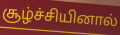
சூழ்ச்சியினால்